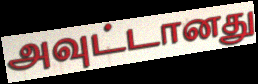
அவுட்டானது